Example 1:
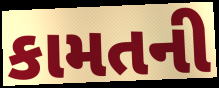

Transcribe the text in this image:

કામતની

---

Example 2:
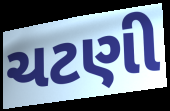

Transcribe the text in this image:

ચટણી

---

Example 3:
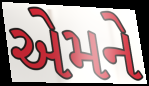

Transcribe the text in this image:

એમને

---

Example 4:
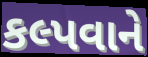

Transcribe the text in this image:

કલ્પવાને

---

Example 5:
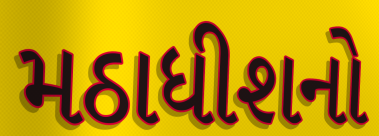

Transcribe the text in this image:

મઠાધીશનો